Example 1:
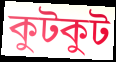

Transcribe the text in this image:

কুটকুট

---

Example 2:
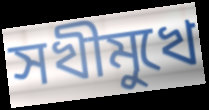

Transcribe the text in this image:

সখীমুখে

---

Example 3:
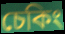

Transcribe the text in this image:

চেকিং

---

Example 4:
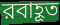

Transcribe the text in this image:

রবাহূত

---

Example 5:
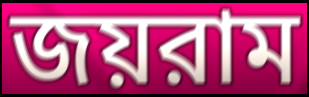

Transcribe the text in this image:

জয়রাম